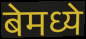
बेमध्ये